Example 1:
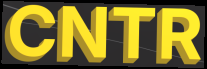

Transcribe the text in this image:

CNTR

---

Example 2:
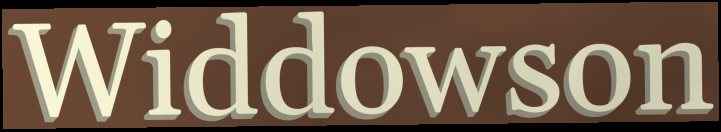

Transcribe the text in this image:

Widdowson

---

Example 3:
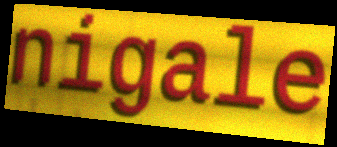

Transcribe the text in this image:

nigale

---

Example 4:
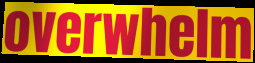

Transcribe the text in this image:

overwhelm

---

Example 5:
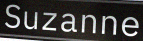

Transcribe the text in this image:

Suzanne